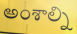
అంశాల్ని